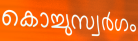
കൊച്ചുസ്വർഗം